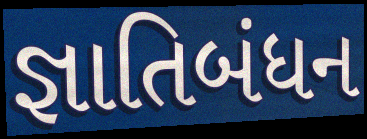
જ્ઞાતિબંધન